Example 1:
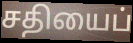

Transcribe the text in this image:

சதியைப்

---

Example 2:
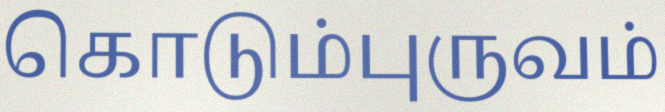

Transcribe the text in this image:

கொடும்புருவம்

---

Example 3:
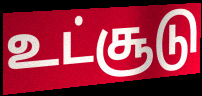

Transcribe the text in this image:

உட்சூடு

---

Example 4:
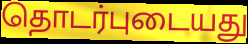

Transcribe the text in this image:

தொடர்புடையது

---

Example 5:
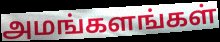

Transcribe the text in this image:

அமங்களங்கள்